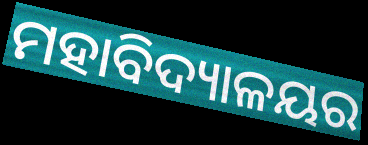
ମହାବିଦ୍ୟାଳୟର